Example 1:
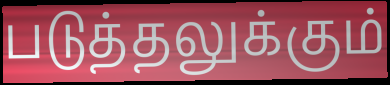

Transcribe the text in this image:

படுத்தலுக்கும்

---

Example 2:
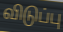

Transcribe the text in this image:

விடுப்பு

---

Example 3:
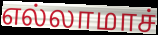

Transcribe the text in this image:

எல்லாமாச்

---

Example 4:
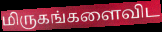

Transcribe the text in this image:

மிருகங்களைவிட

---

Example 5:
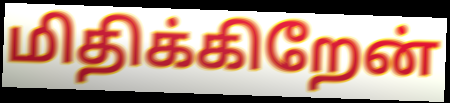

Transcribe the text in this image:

மிதிக்கிறேன்